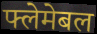
फ्लेमेबल